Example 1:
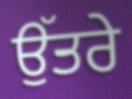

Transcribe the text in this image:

ਉੱਤਰੇ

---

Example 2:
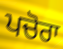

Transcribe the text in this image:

ਪਚੋਰਾ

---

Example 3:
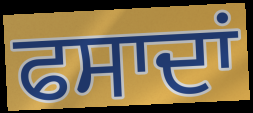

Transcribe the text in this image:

ਫਸਾਦਾਂ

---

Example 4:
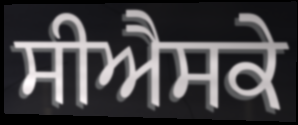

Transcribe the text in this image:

ਸੀਐਸਕੇ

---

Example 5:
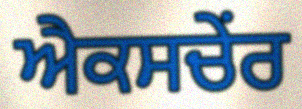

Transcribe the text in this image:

ਐਕਸਚੇਂਰ